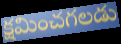
క్షమించగలడు